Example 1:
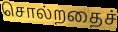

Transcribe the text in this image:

சொல்றதைச்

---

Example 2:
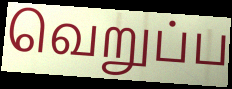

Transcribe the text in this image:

வெறுப்ப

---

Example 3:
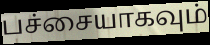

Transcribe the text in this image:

பச்சையாகவும்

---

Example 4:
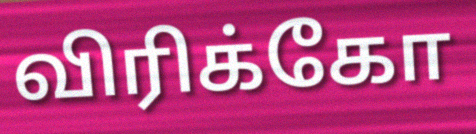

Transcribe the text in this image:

விரிக்கோ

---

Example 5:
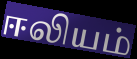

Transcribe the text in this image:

ஈலியம்